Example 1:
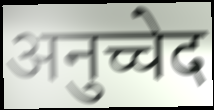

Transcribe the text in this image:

अनुच्चेद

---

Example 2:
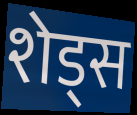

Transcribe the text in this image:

शेड्स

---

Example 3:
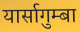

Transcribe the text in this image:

यार्सागुम्बा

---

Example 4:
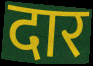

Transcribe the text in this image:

दार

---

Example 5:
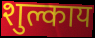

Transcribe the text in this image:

शुल्काय